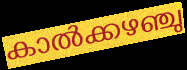
കാൽക്കഴഞ്ചു